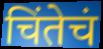
चिंतेचं